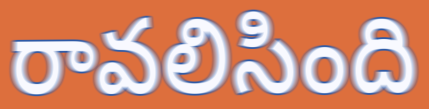
రావలిసింది